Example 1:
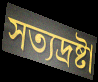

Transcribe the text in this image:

সত্যদ্রষ্টা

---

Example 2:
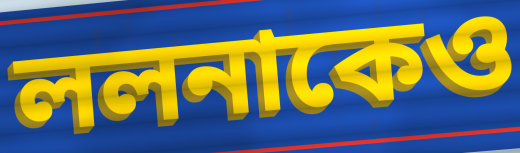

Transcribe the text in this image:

ললনাকেও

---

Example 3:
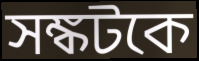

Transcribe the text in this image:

সঙ্কটকে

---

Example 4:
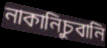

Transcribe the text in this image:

নাকানিচুবানি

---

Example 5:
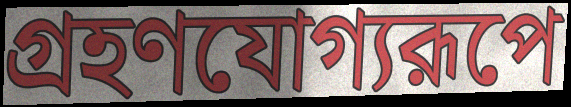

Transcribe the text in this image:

গ্রহণযোগ্যরূপে